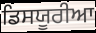
ਡਿਸਯੂਰੀਆ